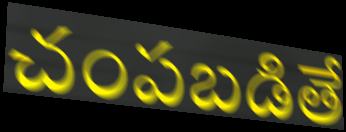
చంపబడితే